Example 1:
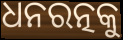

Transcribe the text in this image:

ଧନରତ୍ନକୁ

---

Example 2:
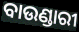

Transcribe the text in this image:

ବାଉଣ୍ଡାରୀ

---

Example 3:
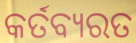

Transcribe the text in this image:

କର୍ତବ୍ୟରତ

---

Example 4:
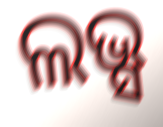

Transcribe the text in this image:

ଲଭ୍ସ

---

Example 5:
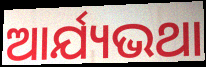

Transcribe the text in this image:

ଆର୍ଯ୍ୟଭଥା